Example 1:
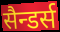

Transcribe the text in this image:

सैन्डर्स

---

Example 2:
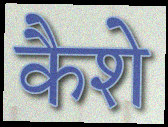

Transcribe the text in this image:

कैशे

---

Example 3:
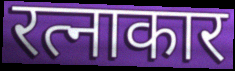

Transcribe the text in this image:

रत्नाकार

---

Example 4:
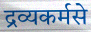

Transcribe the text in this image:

द्रव्यकर्मसे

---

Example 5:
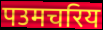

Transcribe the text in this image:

पउमचरिय